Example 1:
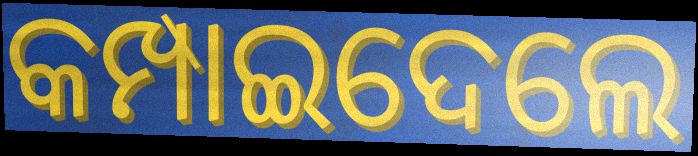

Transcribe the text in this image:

କମ୍ପାଇଦେଲେ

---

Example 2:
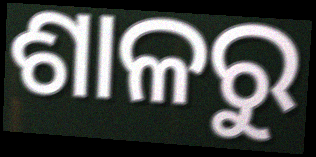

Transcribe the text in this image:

ଶାଳରୁ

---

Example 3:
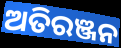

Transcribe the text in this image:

ଅତିରଞ୍ଜନ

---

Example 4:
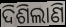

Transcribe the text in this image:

ଦିଶିଲାଣି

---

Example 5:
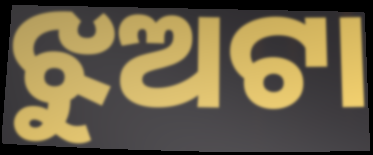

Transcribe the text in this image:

ଝୁଅଟା